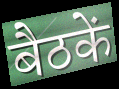
बैठकें